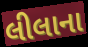
લીલાના